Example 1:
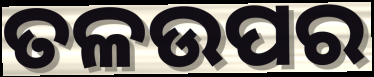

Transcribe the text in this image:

ତଳଉପର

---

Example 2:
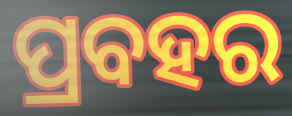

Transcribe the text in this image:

ପ୍ରବହର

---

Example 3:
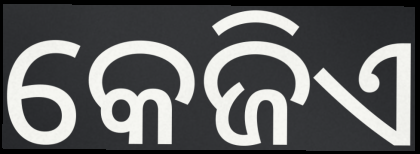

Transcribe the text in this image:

କେଜିଏ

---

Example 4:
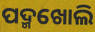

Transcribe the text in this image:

ପଦ୍ମଖୋଲି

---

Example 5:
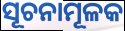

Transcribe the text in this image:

ସୂଚନାମୂଳକ